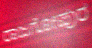
ರಾಜಗೋಪುರ